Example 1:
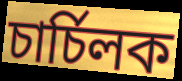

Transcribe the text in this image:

চাৰ্চিলক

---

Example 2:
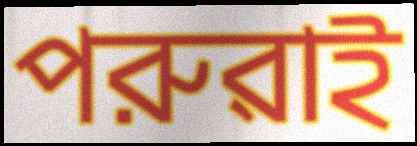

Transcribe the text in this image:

পৰুৱাই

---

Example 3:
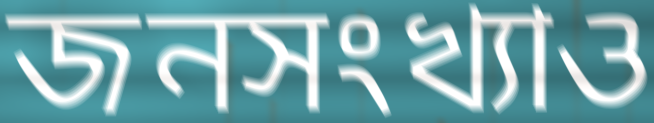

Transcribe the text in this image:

জনসংখ্যাও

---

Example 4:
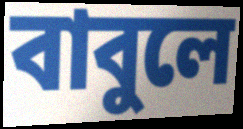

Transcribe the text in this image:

বাবুলে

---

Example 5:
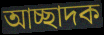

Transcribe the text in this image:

আচ্ছাদক